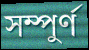
সম্পুৰ্ণ